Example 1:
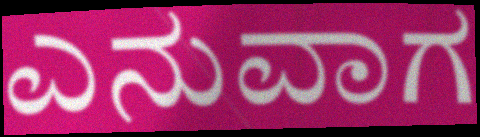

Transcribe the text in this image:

ಎನುವಾಗ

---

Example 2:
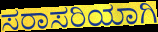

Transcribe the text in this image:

ಸರಾಸರಿಯಾಗಿ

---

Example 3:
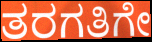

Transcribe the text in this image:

ತರಗತಿಗೇ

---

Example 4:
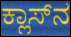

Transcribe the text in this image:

ಕ್ಲಾಸ್‌ನ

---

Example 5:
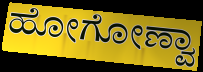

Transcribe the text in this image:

ಹೋಗೋಣ್ವಾ